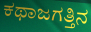
ಕಥಾಜಗತ್ತಿನ